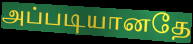
அப்படியானதே